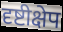
दृष्टीक्षेप